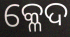
କ୍ଳେଦ